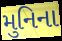
મુનિના